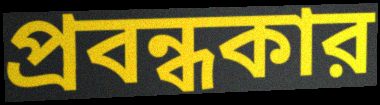
প্রবন্ধকার